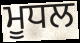
ਮੂਧਲ